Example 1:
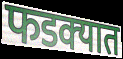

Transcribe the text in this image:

फडक्‍यात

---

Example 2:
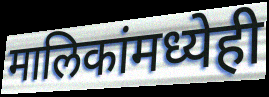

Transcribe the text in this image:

मालिकांमध्येही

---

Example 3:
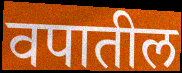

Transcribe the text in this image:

वपातील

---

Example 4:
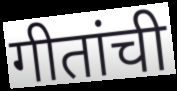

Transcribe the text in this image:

गीतांची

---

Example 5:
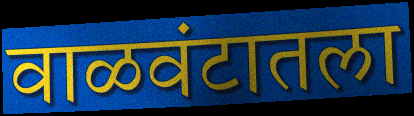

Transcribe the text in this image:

वाळवंटातला